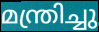
മന്ത്രിച്ചു